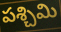
పశ్చిమి